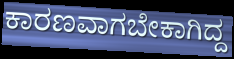
ಕಾರಣವಾಗಬೇಕಾಗಿದ್ದ